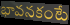
భావనకంటే